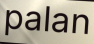
palan